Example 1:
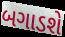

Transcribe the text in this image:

બગાડશે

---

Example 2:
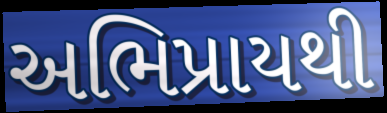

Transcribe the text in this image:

અભિપ્રાયથી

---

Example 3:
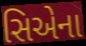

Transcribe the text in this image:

સિએના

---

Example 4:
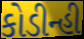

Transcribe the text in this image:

કોડીન્હી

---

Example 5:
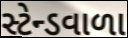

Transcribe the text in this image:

સ્ટેન્ડવાળા